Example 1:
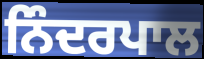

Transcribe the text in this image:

ਨਿੰਦਰਪਾਲ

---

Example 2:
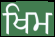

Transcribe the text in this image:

ਖਿਮ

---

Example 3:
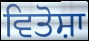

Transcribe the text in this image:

ਵਿਤੋਸ਼ਾ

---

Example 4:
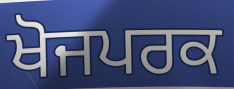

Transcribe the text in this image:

ਖੋਜਪਰਕ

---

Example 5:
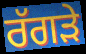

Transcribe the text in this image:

ਰੱਗੜੇ